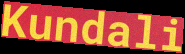
Kundali